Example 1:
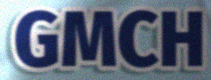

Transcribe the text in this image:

GMCH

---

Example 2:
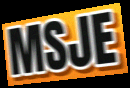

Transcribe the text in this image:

MSJE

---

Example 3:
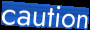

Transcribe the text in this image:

caution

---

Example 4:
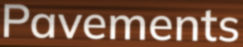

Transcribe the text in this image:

Pavements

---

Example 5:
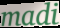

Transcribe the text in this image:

madi